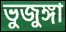
ভুজুঙ্গা